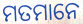
ମତମାନେ